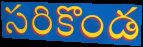
సరికొండ